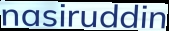
nasiruddin